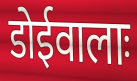
डोईवालाः